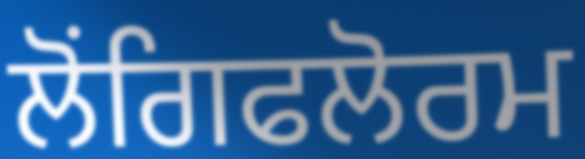
ਲੋਂਗਿਫਲੋਰਮ